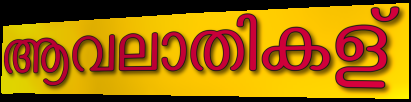
ആവലാതികള്